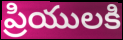
ప్రియులకి